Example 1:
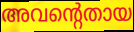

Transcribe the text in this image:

അവന്റെതായ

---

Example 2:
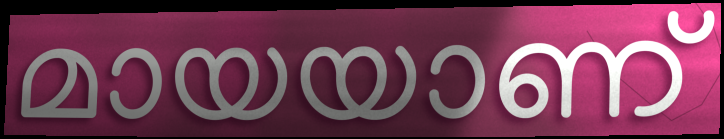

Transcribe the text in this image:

മായയാണ്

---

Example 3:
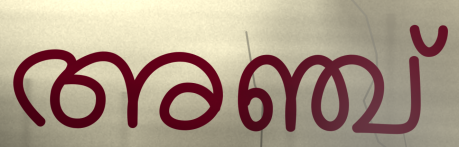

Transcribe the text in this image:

അഞ്ച്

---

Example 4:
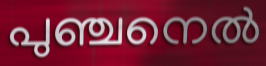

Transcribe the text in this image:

പുഞ്ചനെൽ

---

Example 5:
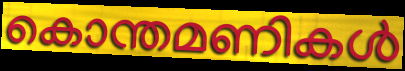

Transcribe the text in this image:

കൊന്തമണികൾ